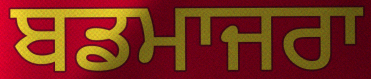
ਬਡਮਾਜਰਾ